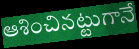
ఆశించినట్టుగానే